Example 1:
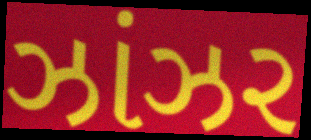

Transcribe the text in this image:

ઝાંઝર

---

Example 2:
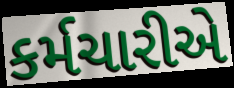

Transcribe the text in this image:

કર્મચારીએ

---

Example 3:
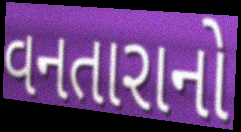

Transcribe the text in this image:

વનતારાનો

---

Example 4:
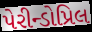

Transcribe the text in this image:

પેરીન્ડોપ્રિલ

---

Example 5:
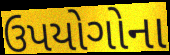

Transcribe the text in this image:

ઉપયોગોના